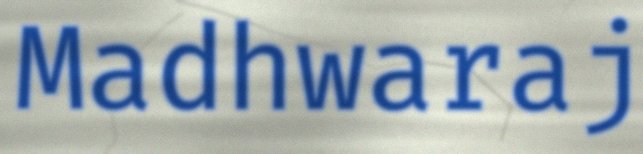
Madhwaraj